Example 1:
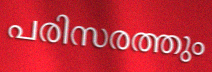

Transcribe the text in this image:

പരിസരത്തും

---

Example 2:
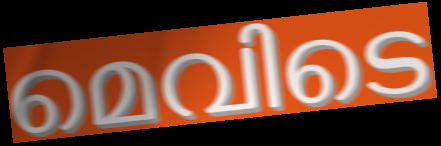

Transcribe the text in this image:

മെവിടെ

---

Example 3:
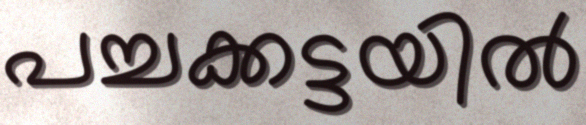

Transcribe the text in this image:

പച്ചക്കട്ടയിൽ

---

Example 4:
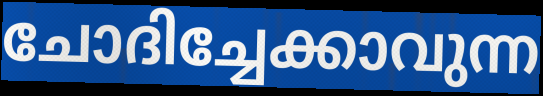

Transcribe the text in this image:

ചോദിച്ചേക്കാവുന്ന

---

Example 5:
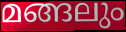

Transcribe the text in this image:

മങ്ങലും